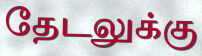
தேடலுக்கு